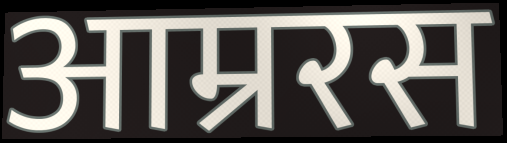
आम्ररस